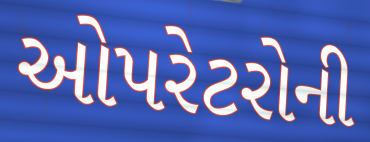
ઓપરેટરોની